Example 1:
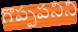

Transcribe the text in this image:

గొప్పపనిని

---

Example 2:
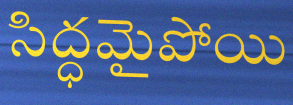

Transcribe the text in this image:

సిద్ధమైపోయి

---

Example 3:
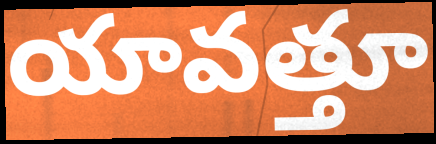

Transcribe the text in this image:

యావత్తూ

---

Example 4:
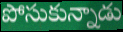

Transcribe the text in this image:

పోసుకున్నాడు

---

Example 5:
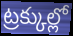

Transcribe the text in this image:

ట్రక్కుల్లో